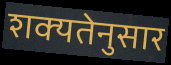
शक्यतेनुसार